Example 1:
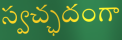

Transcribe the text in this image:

స్వచ్ఛదంగా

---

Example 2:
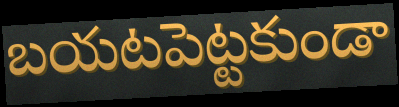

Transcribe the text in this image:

బయటపెట్టకుండా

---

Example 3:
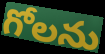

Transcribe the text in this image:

గోలను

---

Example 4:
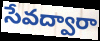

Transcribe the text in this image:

సేవద్వారా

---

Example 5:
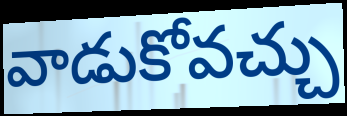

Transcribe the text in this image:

వాడుకోవచ్చు